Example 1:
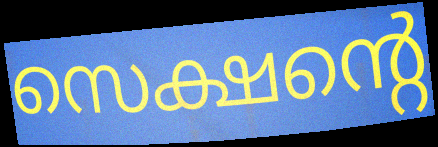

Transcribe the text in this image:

സെക്ഷന്റെ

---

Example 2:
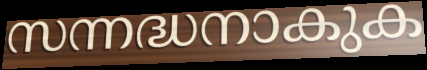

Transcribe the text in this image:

സന്നദ്ധനാകുക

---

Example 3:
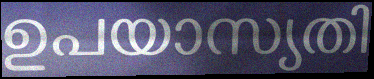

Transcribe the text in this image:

ഉപയാസ്യതി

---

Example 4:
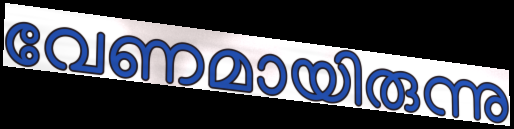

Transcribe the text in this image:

വേണമായിരുന്നു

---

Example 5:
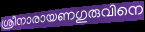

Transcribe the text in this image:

ശ്രീനാരായണഗുരുവിനെ